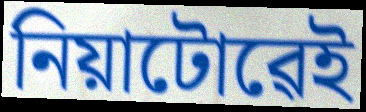
নিয়াটোৱেই